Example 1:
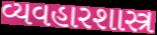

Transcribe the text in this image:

વ્યવહારશાસ્ત્ર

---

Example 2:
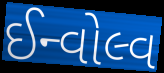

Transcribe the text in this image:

ઈન્વોલ્વ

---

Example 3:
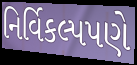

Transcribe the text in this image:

નિર્વિકલ્પપણે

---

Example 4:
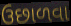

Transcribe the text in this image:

ઉછાળવા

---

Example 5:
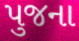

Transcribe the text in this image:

પુજના